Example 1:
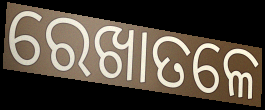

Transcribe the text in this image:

ରେଖାତଳେ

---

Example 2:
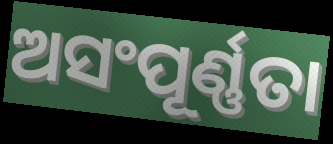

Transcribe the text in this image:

ଅସଂପୂର୍ଣ୍ଣତା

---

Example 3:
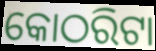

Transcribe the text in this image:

କୋଠରିଟା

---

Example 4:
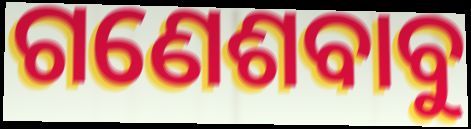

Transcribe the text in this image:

ଗଣେଶବାବୁ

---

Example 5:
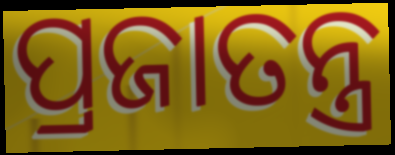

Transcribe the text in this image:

ପ୍ରଜାତନ୍ତ୍ର